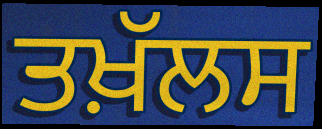
ਤਖ਼ੱਲਸ